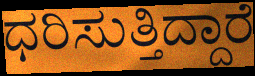
ಧರಿಸುತ್ತಿದ್ದಾರೆ